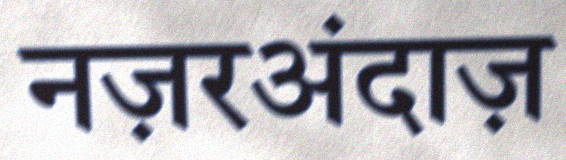
नज़रअंदाज़